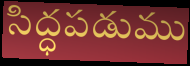
సిద్ధపడుము